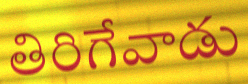
తిరిగేవాడు